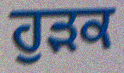
ਹੁੜਕ